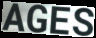
AGES